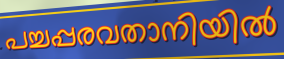
പച്ചപ്പരവതാനിയിൽ